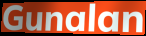
Gunalan